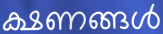
ക്ഷണങ്ങൾ